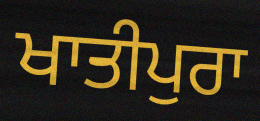
ਖਾਤੀਪੁਰਾ